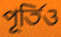
পূর্তিও